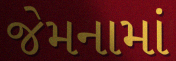
જેમનામાં